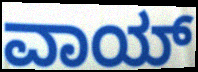
ವಾಯ್